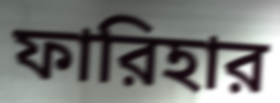
ফারিহার